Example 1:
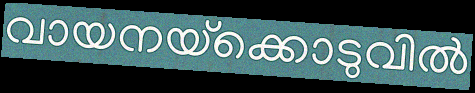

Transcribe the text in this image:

വായനയ്‌ക്കൊടുവിൽ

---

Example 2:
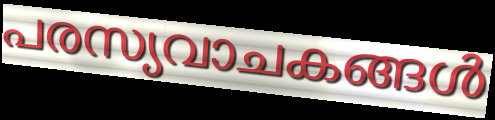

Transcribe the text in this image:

പരസ്യവാചകങ്ങൾ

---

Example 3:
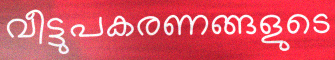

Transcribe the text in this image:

വീട്ടുപകരണങ്ങളുടെ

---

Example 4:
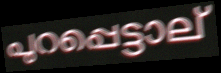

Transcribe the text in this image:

പുറപ്പെട്ടാല്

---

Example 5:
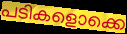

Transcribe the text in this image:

പടികളൊക്കെ